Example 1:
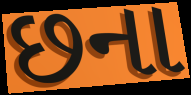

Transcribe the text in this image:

છના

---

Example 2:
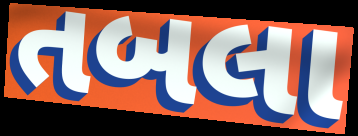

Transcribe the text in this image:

તબલા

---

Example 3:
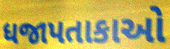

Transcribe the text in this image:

ધજાપતાકાઓ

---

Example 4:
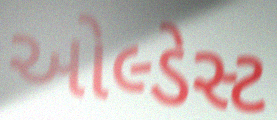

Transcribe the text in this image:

ઓલ્ડેસ્ટ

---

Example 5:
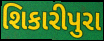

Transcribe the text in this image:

શિકારીપુરા